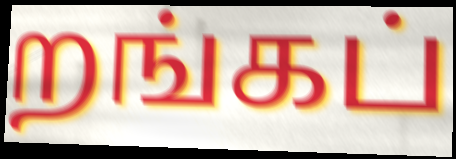
றங்கப்